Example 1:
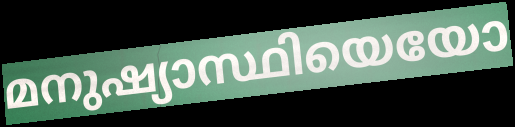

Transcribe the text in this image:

മനുഷ്യാസ്ഥിയെയോ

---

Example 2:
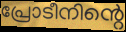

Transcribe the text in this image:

പ്രോടീനിന്റെ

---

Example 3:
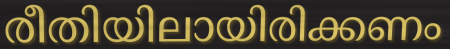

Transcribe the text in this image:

രീതിയിലായിരിക്കണം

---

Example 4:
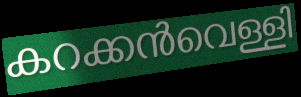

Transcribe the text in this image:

കറക്കൻവെള്ളി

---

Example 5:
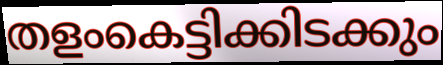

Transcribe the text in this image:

തളംകെട്ടിക്കിടക്കും